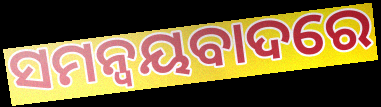
ସମନ୍ୱୟବାଦରେ